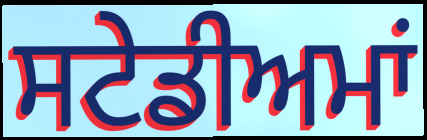
ਸਟੇਡੀਅਮਾਂ